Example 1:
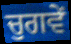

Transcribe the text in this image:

ਚੁਗਵੇਂ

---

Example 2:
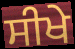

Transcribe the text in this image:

ਸੀਖੇ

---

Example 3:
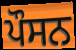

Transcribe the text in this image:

ਪੌਸਨ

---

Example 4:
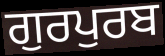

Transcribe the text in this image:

ਗੁਰਪੁਰਬ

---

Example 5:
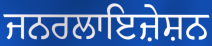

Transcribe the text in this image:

ਜਨਰਲਾਇਜ਼ੇਸ਼ਨ